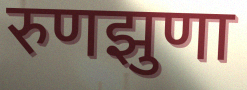
रुणझुणा